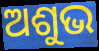
ଅଶୁଭ